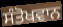
ਸੰਤੋਖਵਾਨ